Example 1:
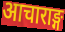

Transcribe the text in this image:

आचाराङ्ग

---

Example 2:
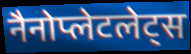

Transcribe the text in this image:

नैनोप्लेटलेट्स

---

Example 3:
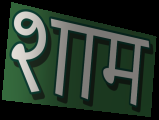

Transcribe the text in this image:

शाम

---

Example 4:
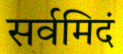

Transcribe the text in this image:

सर्वमिदं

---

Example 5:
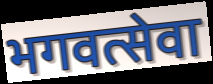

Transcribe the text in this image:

भगवत्सेवा